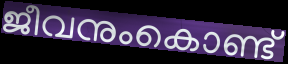
ജീവനുംകൊണ്ട്